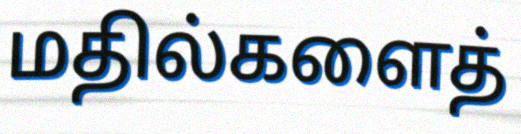
மதில்களைத்